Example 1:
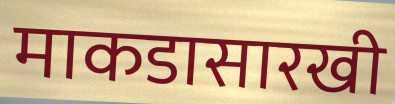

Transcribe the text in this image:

माकडासारखी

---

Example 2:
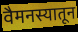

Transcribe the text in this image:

वैमनस्यातून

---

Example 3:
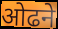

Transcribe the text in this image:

ओढने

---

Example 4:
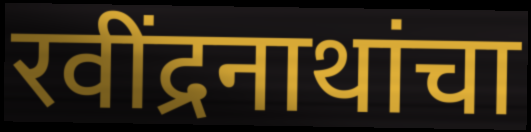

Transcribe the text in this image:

रवींद्रनाथांचा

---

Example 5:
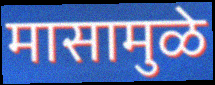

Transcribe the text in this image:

मासामुळे